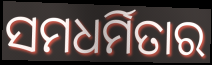
ସମଧର୍ମିତାର